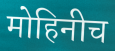
मोहिनीच